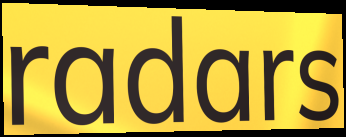
radars